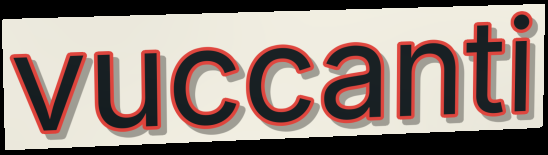
vuccanti